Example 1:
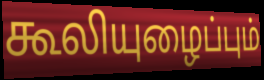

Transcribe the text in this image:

கூலியுழைப்பும்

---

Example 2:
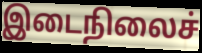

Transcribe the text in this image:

இடைநிலைச்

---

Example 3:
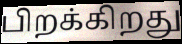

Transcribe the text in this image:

பிறக்கிறது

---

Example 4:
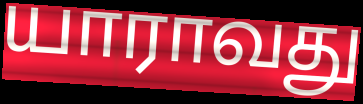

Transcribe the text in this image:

யாராவது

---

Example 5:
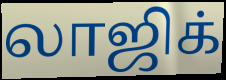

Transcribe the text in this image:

லாஜிக்